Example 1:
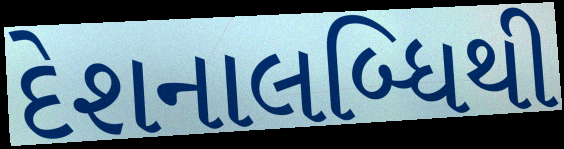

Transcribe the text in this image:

દેશનાલબ્ધિથી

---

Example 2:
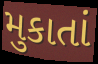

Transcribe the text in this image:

મુકાતાં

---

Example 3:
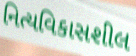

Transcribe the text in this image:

નિત્યવિકાસશીલ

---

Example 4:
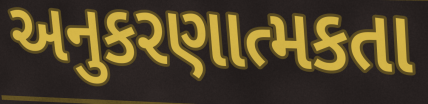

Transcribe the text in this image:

અનુકરણાત્મકતા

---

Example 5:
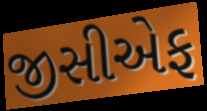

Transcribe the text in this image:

જીસીએફ